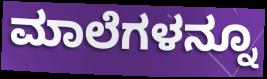
ಮಾಲೆಗಳನ್ನೂ